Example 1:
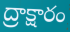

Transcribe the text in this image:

ద్రాక్షారం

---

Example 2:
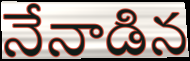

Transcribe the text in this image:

నేనాడిన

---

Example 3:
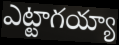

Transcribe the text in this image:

ఎట్టాగయ్యా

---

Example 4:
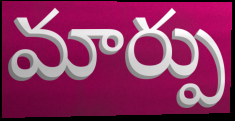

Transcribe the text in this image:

మార్పు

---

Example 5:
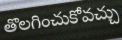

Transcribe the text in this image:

తొలగించుకోవచ్చు